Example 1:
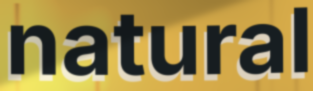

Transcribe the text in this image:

natural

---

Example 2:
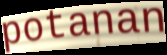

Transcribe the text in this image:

potanan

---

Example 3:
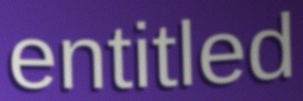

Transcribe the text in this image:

entitled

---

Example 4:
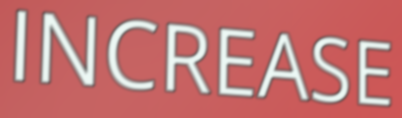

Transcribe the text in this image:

INCREASE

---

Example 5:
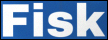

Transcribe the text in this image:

Fisk